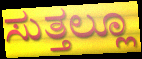
ಸುತ್ತಲ್ಲೂ